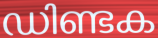
ഡിണ്ടക